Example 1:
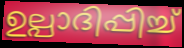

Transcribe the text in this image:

ഉല്പാദിപ്പിച്ച്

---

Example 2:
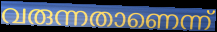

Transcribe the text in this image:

വരുന്നതാണെന്ന്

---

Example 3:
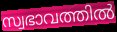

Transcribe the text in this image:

സ്വഭാവത്തിൽ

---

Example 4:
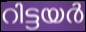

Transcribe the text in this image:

റിട്ടയർ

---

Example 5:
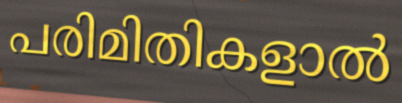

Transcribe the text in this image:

പരിമിതികളാൽ